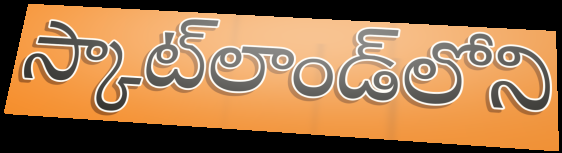
స్కాట్‌లాండ్‌లోని